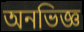
অনভিজ্ঞ